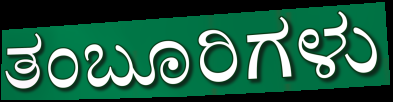
ತಂಬೂರಿಗಳು